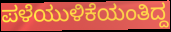
ಪಳೆಯುಳಿಕೆಯಂತಿದ್ದ